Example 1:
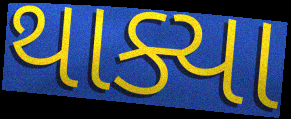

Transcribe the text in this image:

થાક્યા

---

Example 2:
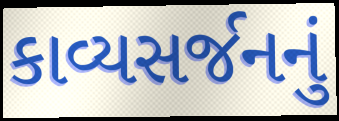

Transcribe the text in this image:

કાવ્યસર્જનનું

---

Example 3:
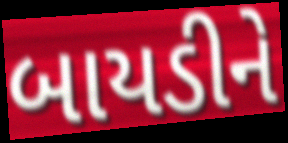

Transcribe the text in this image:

બાયડીને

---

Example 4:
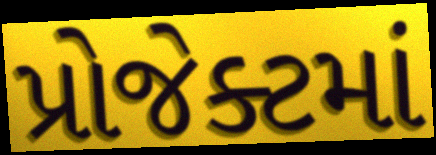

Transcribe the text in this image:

પ્રોજેક્ટમાં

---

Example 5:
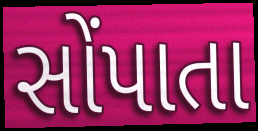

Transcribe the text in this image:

સોંપાતા